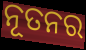
ନୂତନର